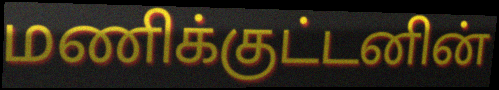
மணிக்குட்டனின்